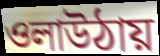
ওলাউঠায়